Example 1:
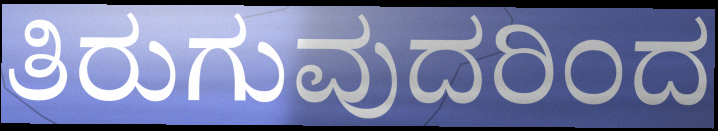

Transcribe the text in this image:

ತಿರುಗುವುದರಿಂದ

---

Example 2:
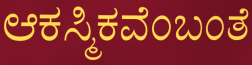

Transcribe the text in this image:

ಆಕಸ್ಮಿಕವೆಂಬಂತೆ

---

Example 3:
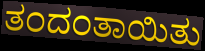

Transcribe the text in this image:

ತಂದಂತಾಯಿತು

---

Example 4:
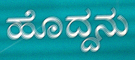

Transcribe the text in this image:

ಹೊದ್ದನು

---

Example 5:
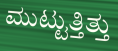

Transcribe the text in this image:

ಮುಟ್ಟುತ್ತಿತ್ತು